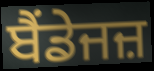
ਬੈਂਡੇਜਜ਼